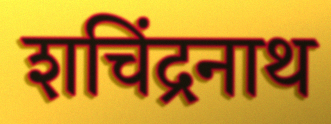
शचिंद्रनाथ